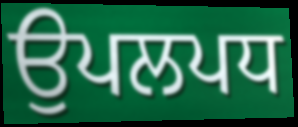
ਉਪਲਪਧ